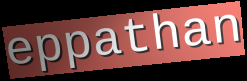
eppathan